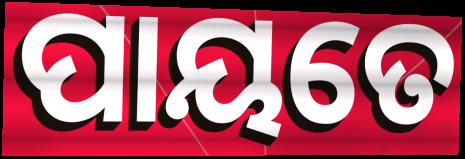
ପାୟତେ